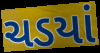
ચડયાં